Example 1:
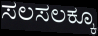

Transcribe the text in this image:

ಸಲಸಲಕ್ಕೂ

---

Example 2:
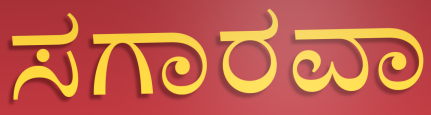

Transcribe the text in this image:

ಸಗಾರವಾ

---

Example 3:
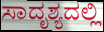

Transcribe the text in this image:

ಸಾದೃಶ್ಯದಲ್ಲಿ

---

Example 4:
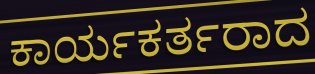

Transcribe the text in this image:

ಕಾರ್ಯಕರ್ತರಾದ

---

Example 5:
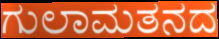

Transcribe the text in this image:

ಗುಲಾಮತನದ